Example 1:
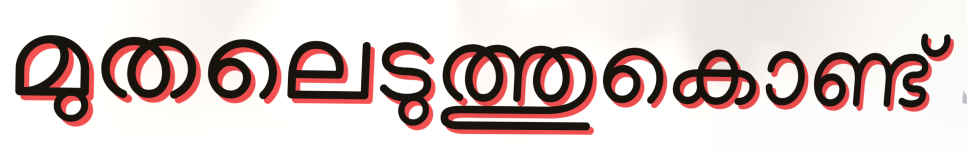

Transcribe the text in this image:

മുതലെടുത്തുകൊണ്ട്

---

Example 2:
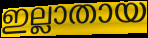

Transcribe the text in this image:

ഇല്ലാതായ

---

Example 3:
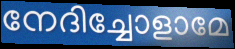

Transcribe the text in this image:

നേദിച്ചോളാമേ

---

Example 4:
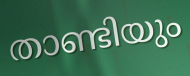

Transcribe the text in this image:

താണ്ടിയും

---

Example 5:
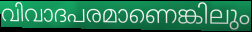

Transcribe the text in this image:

വിവാദപരമാണെങ്കിലും